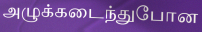
அழுக்கடைந்துபோன